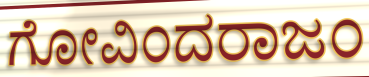
ಗೋವಿಂದರಾಜಂ